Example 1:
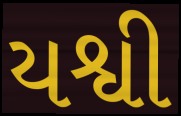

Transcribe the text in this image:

યશ્વી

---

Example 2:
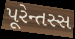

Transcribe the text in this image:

પૂરેન્તસ્સ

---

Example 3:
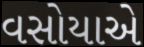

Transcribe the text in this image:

વસોયાએ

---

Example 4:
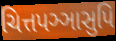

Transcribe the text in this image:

ચિત્તપઞ્ઞાસુપિ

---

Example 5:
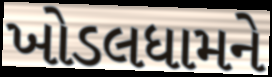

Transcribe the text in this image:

ખોડલધામને